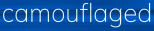
camouflaged